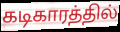
கடிகாரத்தில்